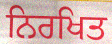
ਨਿਰਖਿਤ